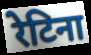
रेटिना